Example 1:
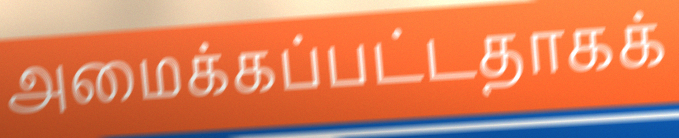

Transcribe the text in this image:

அமைக்கப்பட்டதாகக்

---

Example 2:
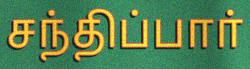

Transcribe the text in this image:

சந்திப்பார்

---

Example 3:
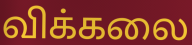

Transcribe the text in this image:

விக்கலை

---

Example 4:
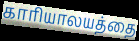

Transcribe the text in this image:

காரியாலயத்தை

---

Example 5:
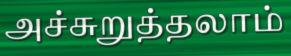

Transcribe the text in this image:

அச்சுறுத்தலாம்